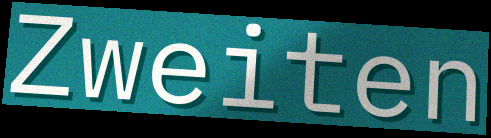
Zweiten